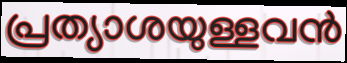
പ്രത്യാശയുള്ളവൻ